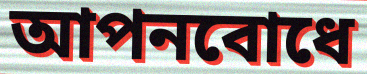
আপনবোধে